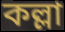
কল্লা